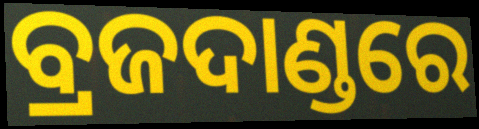
ବ୍ରଜଦାଣ୍ଡରେ